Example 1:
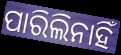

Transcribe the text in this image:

ପାରିଲିନାହିଁ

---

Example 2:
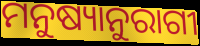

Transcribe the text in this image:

ମନୁଷ୍ୟାନୁରାଗୀ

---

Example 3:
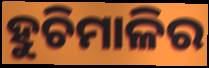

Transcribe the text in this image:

ହୁଚିମାଳିର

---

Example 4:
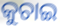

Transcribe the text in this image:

କୁଚାଇ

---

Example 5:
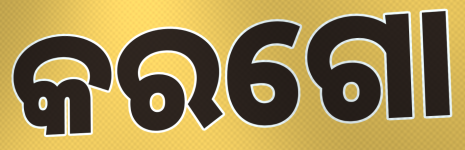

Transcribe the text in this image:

କରଗୋ